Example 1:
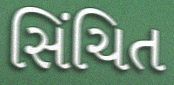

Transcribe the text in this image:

સિંચિત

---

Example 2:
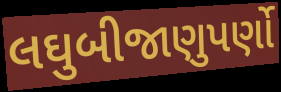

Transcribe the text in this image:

લઘુબીજાણુપર્ણો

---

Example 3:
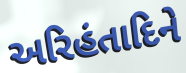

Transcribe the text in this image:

અરિહંતાદિને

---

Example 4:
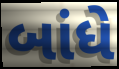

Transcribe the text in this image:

બાંધે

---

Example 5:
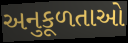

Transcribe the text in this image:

અનુકૂળતાઓ